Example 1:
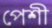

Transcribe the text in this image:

পেশী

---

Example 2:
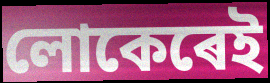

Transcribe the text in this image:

লোকেৰেই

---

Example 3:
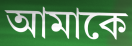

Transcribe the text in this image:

আমাকে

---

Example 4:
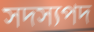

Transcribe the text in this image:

সদস্যপদ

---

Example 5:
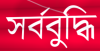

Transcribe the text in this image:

সৰ্ববুদ্ধি